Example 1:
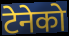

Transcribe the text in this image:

टेनेको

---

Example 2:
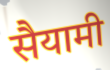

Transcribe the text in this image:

सैयामी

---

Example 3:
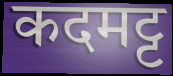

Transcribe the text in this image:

कदमट्ट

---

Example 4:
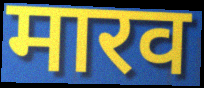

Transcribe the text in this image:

मारव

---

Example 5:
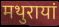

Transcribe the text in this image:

मथुरायां